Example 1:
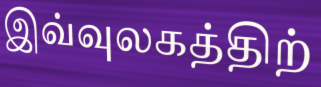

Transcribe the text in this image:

இவ்வுலகத்திற்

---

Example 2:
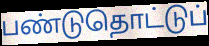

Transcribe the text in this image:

பண்டுதொட்டுப்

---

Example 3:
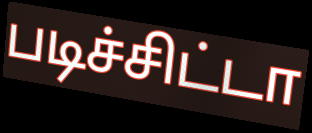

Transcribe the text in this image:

படிச்சிட்டா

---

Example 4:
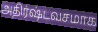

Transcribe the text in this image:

அதிர்ஷ்டவசமாக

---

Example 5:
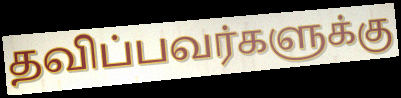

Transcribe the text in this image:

தவிப்பவர்களுக்கு